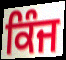
ਕਿੰਜ